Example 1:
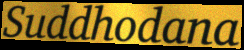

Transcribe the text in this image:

Suddhodana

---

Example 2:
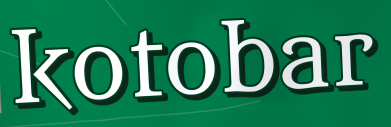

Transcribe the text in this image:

kotobar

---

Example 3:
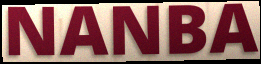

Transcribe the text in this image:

NANBA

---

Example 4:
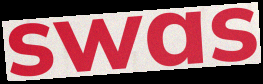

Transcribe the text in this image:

swas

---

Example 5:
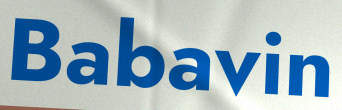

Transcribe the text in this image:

Babavin